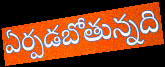
ఏర్పడబోతున్నది